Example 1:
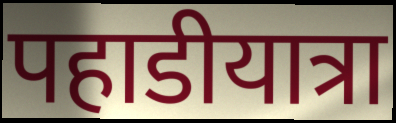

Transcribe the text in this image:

पहाडीयात्रा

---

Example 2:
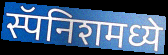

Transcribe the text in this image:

स्पॅनिशमध्ये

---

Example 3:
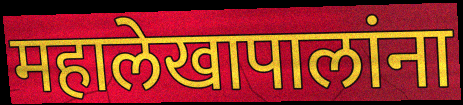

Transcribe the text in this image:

महालेखापालांना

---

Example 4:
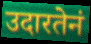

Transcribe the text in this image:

उदारतेनं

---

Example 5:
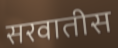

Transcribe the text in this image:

सरवातीस